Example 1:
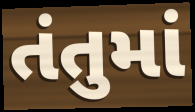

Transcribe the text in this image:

તંતુમાં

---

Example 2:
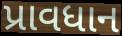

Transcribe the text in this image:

પ્રાવધાન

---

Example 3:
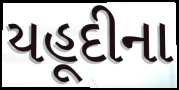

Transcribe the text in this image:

યહૂદીના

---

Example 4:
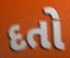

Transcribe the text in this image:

દતો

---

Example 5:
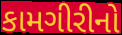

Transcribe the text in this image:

કામગીરીનો